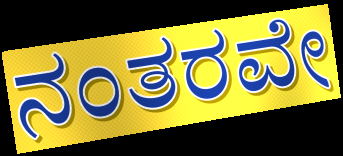
ನಂತರವೇ